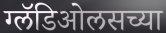
ग्लॅडिओलसच्या